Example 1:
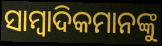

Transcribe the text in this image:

ସାମ୍ବାଦିକମାନଙ୍କୁ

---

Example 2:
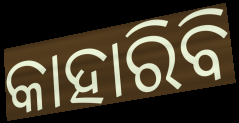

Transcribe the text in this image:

କାହାରିବି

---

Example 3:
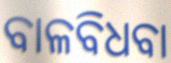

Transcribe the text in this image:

ବାଳବିଧବା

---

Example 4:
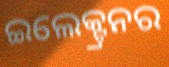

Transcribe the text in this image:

ଇଲେକ୍ଟ୍ରନର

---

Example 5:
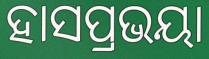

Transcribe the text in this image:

ହାସପ୍ରଭୟା